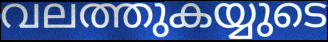
വലത്തുകയ്യുടെ